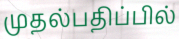
முதல்பதிப்பில்